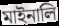
মাইনালি